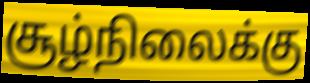
சூழ்நிலைக்கு